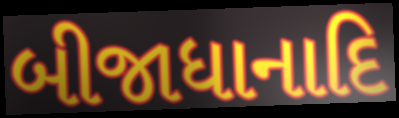
બીજાધાનાદિ